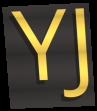
YJ